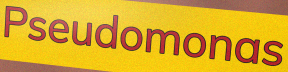
Pseudomonas